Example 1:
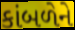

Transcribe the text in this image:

કાંબળેને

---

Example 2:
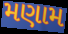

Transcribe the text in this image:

મણામ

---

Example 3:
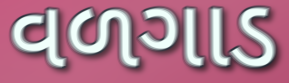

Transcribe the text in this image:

વળગાડ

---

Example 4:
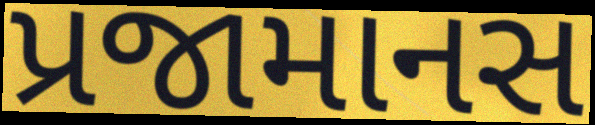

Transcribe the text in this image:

પ્રજામાનસ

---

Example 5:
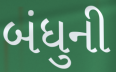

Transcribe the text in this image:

બંધુની